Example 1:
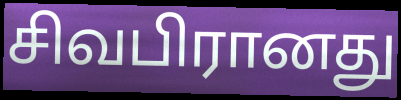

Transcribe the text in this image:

சிவபிரானது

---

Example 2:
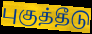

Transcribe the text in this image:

புகுத்தீடு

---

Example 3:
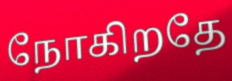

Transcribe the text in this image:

நோகிறதே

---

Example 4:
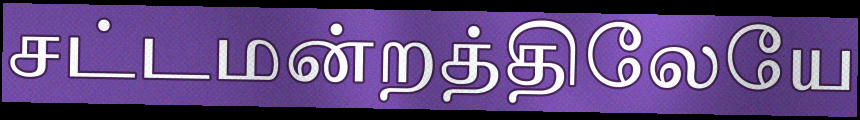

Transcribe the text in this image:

சட்டமன்றத்திலேயே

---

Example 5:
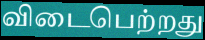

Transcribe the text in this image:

விடைபெற்றது